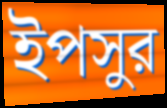
ইপসুর